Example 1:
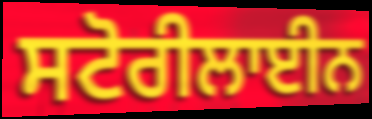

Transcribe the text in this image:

ਸਟੋਰੀਲਾਈਨ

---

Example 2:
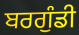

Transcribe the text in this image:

ਬਰਗੁੰਡੀ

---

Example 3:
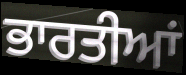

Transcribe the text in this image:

ਭਾਰਤੀਆਂ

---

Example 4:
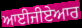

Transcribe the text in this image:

ਆਈਜੀਏਆਰ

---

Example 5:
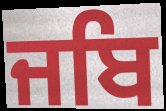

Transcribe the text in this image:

ਜਬਿ